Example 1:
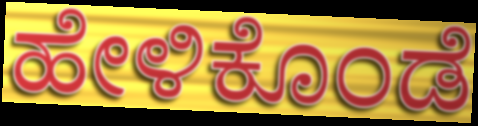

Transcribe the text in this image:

ಹೇಳಿಕೊಂಡೆ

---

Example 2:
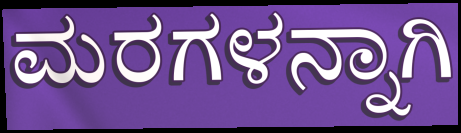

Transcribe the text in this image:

ಮರಗಳನ್ನಾಗಿ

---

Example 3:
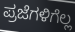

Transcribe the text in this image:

ಪ್ರಜೆಗಳಿಗೆಲ್ಲ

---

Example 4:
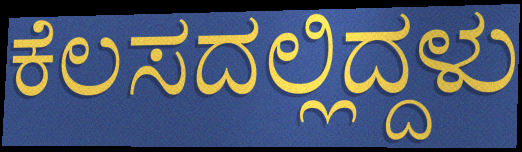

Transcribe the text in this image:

ಕೆಲಸದಲ್ಲಿದ್ದಳು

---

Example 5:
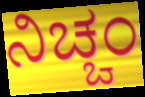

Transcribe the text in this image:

ನಿಚ್ಚಂ